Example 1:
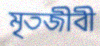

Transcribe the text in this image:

মৃতজীবী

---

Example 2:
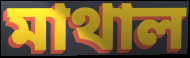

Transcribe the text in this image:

মাথাল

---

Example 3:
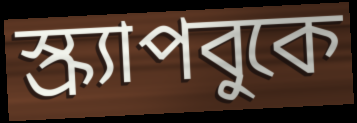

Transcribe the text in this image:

স্ক্র্যাপবুকে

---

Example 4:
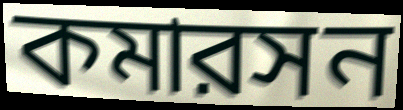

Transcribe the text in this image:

কমারসন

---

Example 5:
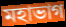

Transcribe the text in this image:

মহাভাগ